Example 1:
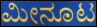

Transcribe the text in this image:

ಮೀನೂಟ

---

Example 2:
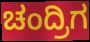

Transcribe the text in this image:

ಚಂದ್ರಿಗ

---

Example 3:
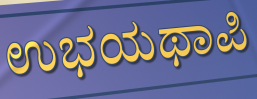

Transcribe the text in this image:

ಉಭಯಥಾಪಿ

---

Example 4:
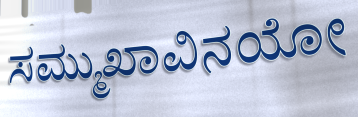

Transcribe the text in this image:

ಸಮ್ಮುಖಾವಿನಯೋ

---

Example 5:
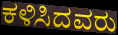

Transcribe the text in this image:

ಕಳಿಸಿದವರು